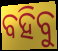
ବହିବୁ